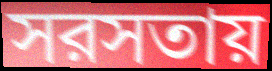
সরসতায়